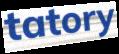
tatory